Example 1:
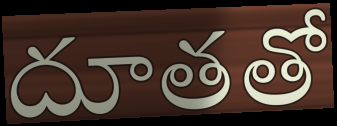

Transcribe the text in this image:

దూతతో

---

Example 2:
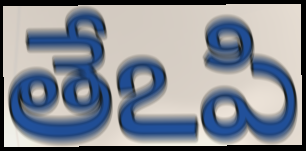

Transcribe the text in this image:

తేఽపి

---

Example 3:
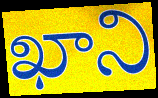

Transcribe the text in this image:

ఖాని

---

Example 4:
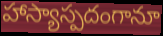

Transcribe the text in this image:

హాస్యాస్పదంగానూ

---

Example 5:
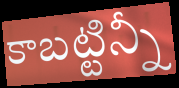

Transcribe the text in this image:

కాబట్టిన్నీ